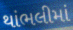
થાંભલીમાં